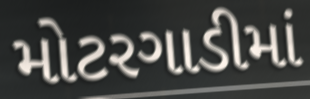
મોટરગાડીમાં